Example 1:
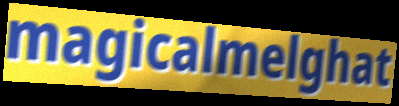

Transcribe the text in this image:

magicalmelghat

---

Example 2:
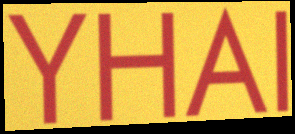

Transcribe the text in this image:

YHAI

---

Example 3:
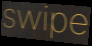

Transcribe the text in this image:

swipe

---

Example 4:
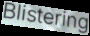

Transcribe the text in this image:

Blistering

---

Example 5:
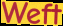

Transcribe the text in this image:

Weft